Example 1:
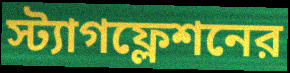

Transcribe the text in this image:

স্ট্যাগফ্লেশনের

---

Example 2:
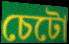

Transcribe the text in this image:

চেটো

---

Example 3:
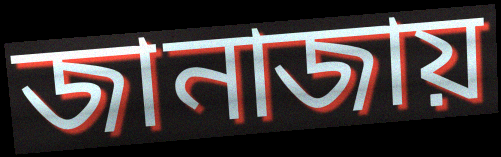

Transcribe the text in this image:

জানাজায়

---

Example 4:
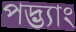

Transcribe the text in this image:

পদ্ভ্যাং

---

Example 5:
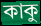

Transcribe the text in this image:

কাকু